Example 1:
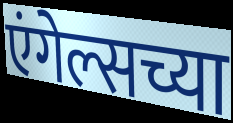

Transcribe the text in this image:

एंगेल्सच्या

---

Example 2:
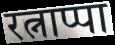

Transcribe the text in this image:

रत्नाप्पा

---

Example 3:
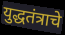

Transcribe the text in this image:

युद्धतंत्राचे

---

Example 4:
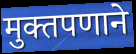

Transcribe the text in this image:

मुक्तपणाने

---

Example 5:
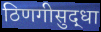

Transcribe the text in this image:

ठिणगीसुद्धा